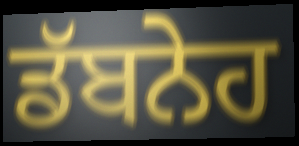
ਡੱਬਨੇਹ